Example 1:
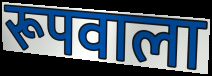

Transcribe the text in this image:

रूपवाला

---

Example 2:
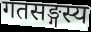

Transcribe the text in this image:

गतसङ्गस्य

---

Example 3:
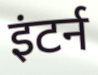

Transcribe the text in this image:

इंटर्न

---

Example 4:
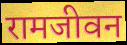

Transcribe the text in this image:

रामजीवन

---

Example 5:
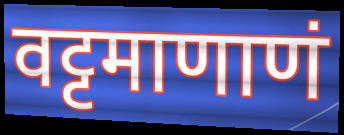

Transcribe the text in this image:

वट्टमाणाणं